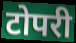
टोपरी